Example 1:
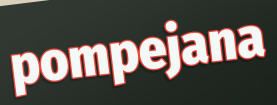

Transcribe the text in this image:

pompejana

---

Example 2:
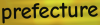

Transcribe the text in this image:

prefecture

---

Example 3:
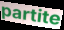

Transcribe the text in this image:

partite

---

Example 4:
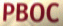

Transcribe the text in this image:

PBOC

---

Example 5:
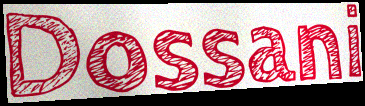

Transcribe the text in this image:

Dossani